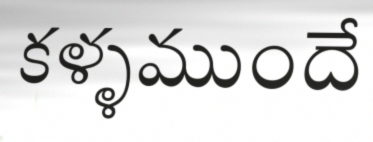
కళ్ళముందే